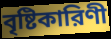
বৃষ্টিকারিণী